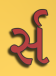
ર્સ